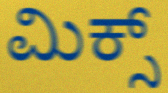
ಮಿಕ್ಸ್